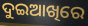
ଦୁଇଆଖିରେ